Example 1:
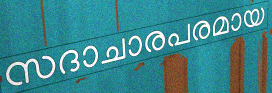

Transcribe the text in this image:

സദാചാരപരമായ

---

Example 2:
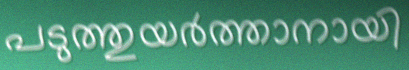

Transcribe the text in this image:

പടുത്തുയർത്താനായി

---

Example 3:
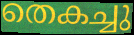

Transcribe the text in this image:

തെകച്ചു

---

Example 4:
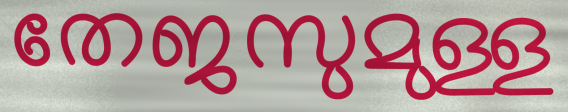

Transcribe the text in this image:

തേജസുമുള്ള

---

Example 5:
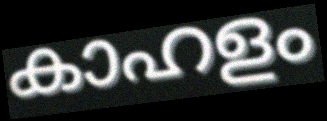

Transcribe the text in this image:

കാഹളം